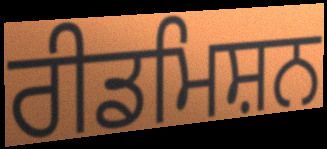
ਰੀਡਮਿਸ਼ਨ